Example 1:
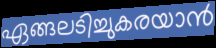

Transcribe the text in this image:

ഏങ്ങലടിച്ചുകരയാൻ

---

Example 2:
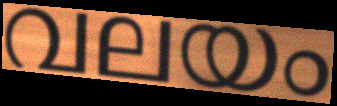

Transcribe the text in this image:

വലയം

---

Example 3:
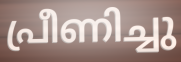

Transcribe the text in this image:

പ്രീണിച്ചു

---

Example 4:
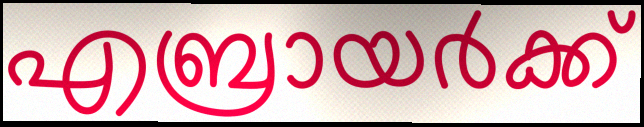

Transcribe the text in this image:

എബ്രായർക്ക്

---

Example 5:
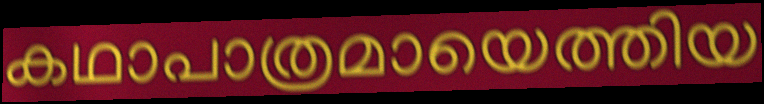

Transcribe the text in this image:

കഥാപാത്രമായെത്തിയ